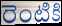
రెంటికి